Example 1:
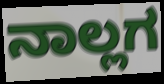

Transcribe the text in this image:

ನಾಲ್ಲಗ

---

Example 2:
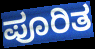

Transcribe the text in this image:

ಪೂರಿತ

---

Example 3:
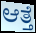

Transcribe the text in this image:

ಆತ್ತೆ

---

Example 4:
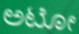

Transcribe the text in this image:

ಅಟೋ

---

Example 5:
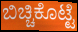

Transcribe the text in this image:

ಬಿಚ್ಚಿಕೊಟ್ಟೆ